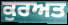
ਕੁਰਅਤ